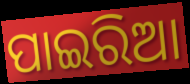
ପାଇରିଆ